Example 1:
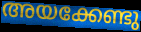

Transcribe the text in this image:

അയക്കേണ്ടു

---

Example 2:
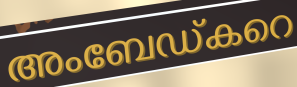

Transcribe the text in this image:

അംബേഡ്കറെ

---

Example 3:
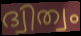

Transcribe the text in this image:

ദ്വിത്വം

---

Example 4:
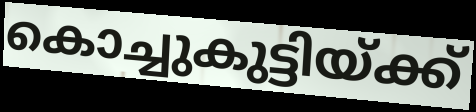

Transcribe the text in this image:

കൊച്ചുകുട്ടിയ്ക്ക്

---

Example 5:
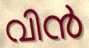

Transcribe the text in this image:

വിൻ